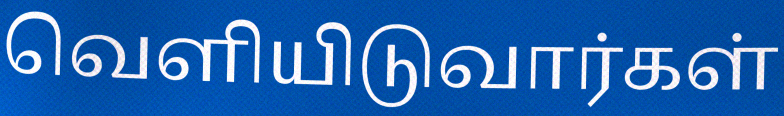
வெளியிடுவார்கள்